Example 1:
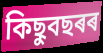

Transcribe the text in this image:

কিছুবছৰৰ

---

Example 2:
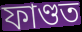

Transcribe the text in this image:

ফাণ্ডত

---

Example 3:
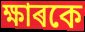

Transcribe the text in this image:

ক্ষাৰকে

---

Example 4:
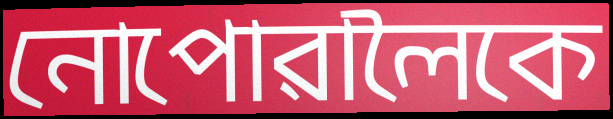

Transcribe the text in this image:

নোপোৱালৈকে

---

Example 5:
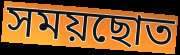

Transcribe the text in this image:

সময়ছোত